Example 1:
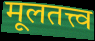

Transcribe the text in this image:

मूलतत्त्व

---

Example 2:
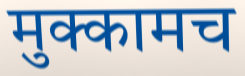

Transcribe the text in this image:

मुक्कामच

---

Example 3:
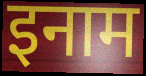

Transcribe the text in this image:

इनाम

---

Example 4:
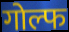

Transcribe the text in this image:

गोल्फ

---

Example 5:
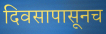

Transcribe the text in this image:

दिवसापासूनच